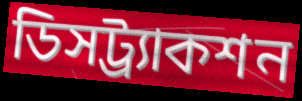
ডিসট্র্যাকশন